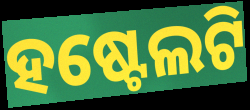
ହଷ୍ଟେଲଟି